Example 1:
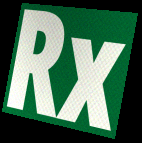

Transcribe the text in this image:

Rx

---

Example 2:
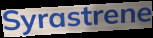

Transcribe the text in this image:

Syrastrene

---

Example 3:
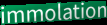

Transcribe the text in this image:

immolation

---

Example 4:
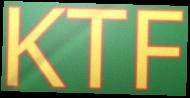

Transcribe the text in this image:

KTF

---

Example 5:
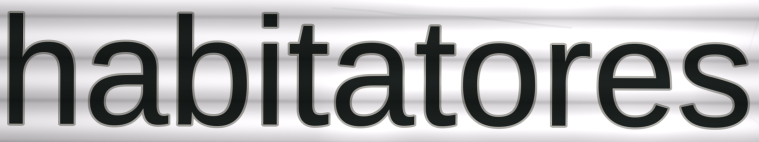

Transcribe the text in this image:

habitatores